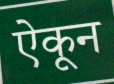
ऐकून